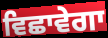
ਵਿਛਾਵੇਗਾ